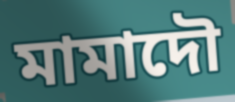
মামাদৌ